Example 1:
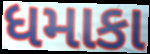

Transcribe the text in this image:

ધમાકા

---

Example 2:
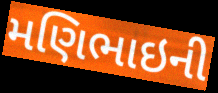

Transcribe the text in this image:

મણિભાઇની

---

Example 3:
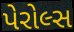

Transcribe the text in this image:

પેરોલ્સ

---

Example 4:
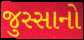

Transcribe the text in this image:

જુસ્સાનો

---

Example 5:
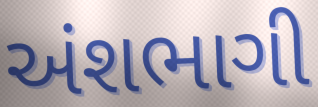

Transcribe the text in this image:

અંશભાગી